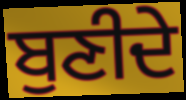
ਬੁਣੀਦੇ